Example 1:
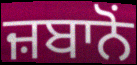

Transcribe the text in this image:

ਜ਼ਬਾਨੋਂ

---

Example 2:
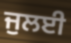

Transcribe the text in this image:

ਜੁਲਈ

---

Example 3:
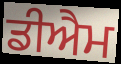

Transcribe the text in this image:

ਡੀਐਮ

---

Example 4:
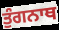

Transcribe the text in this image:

ਤੁੰਗਨਾਥ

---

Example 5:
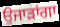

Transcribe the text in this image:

ਉਜਾੜਾਂਗਾ